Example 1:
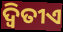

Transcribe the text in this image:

ଦ୍ୱିତୀଏ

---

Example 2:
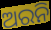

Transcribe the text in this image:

ଅରନି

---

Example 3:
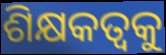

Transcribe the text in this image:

ଶିକ୍ଷକତ୍ଵକୁ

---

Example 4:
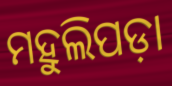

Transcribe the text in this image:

ମହୁଲିପଡ଼ା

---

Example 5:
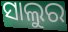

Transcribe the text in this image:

ସାଲୁର